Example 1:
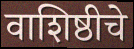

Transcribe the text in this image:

वाशिष्ठीचे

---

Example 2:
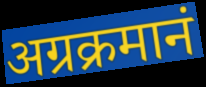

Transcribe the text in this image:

अग्रक्रमानं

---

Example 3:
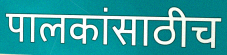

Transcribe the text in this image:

पालकांसाठीच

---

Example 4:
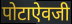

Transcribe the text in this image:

पोटाऐवजी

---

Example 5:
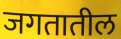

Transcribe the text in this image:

जगतातील